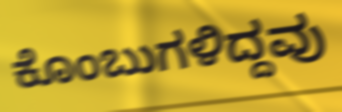
ಕೊಂಬುಗಳಿದ್ದವು